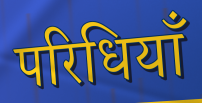
परिधियाँ